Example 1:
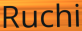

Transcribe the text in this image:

Ruchi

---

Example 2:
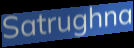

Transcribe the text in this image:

Satrughna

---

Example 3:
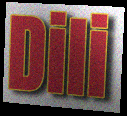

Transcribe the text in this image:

Dili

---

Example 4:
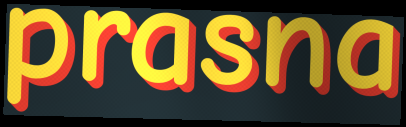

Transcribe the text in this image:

prasna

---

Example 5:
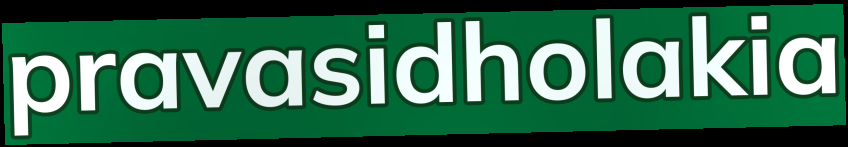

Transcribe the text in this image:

pravasidholakia